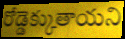
రోడ్డెక్కుతాయని